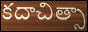
కదాచిత్సా